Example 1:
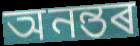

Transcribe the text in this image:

অনন্তৰ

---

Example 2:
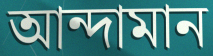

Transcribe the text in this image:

আন্দামান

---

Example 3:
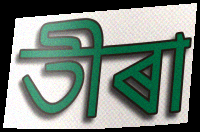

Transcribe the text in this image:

তীৰা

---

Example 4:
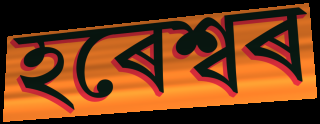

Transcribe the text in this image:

হৰেশ্বৰ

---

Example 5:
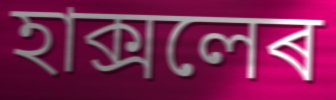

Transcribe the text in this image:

হাক্সলেৰ